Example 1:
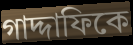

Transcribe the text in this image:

গাদ্দাফিকে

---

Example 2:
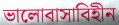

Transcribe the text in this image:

ভালোবাসাবিহীন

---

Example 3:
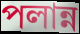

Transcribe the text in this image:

পলান্ন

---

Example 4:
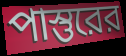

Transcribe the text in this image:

পাস্তুরের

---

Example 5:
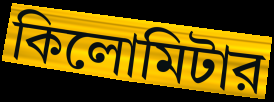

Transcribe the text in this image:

কিলোমিটার